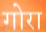
गोरा